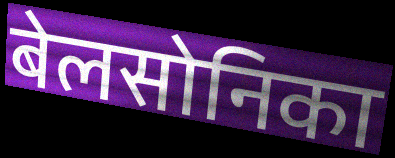
बेलसोनिका